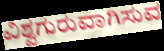
ವಿಶ್ವಗುರುವಾಗಿಸುವ